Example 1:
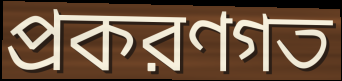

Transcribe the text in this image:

প্রকরণগত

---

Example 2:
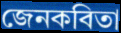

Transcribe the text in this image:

জেনকবিতা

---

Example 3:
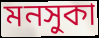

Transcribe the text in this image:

মনসুকা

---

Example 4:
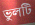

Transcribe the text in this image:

ভুলটি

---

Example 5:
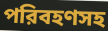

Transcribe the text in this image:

পরিবহণসহ